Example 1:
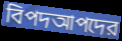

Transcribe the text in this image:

বিপদআপদের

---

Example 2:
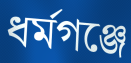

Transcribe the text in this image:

ধর্মগঞ্জে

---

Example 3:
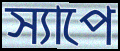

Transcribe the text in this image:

স্যাপে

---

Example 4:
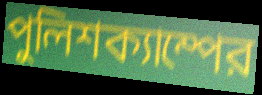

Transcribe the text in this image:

পুলিশক্যাম্পের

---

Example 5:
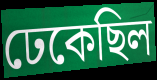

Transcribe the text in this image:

ঢেকেছিল